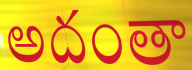
అదంతా